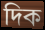
দিক